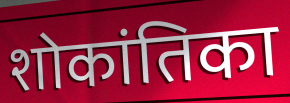
शोकांतिका